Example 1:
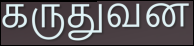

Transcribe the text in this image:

கருதுவன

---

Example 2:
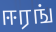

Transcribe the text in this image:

ஈரங்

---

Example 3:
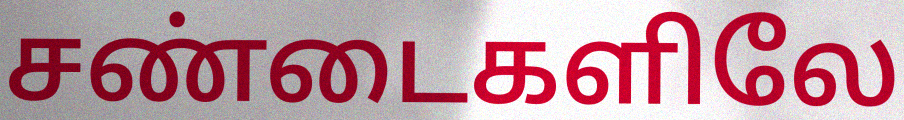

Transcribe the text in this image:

சண்டைகளிலே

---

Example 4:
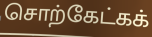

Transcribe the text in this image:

சொற்கேட்கக்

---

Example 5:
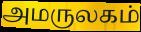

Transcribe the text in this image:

அமருலகம்